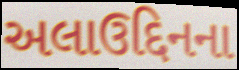
અલાઉદ્દિનના